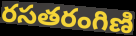
రసతరంగిణి